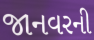
જાનવરની